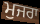
ਮੁਜਰਾ